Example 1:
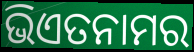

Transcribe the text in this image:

ଭିଏତନାମର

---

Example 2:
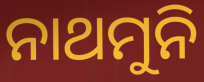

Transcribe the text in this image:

ନାଥମୁନି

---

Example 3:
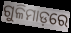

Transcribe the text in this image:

ଗୁଳିମାଡ଼ରେ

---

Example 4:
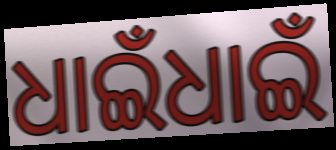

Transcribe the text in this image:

ଧାଇଁଧାଇଁ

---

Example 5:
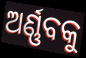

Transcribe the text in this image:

ଅର୍ଣ୍ଣବକୁ